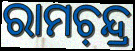
ରାମଚ଼ନ୍ଦ୍ର